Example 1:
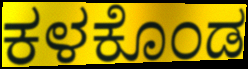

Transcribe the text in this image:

ಕಳಕೊಂಡ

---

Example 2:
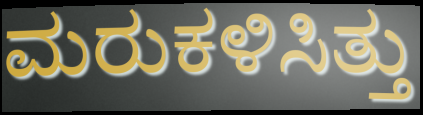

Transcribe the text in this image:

ಮರುಕಳಿಸಿತ್ತು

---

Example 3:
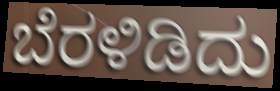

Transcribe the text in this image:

ಬೆರಳಿಡಿದು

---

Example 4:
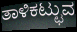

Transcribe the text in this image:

ತಾಳಿಕಟ್ಟುವ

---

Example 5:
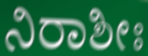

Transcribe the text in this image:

ನಿರಾಶೀಃ